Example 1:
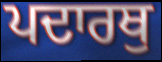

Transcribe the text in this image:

ਪਦਾਰਥੁ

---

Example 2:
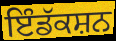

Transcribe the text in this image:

ਇੰਡੱਕਸ਼ਨ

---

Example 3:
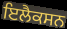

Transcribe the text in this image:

ਇਲੈਕਸਨ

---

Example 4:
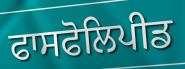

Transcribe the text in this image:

ਫਾਸਫੋਲਿਪੀਡ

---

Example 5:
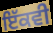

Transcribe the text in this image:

ਇੱਕਵੀ